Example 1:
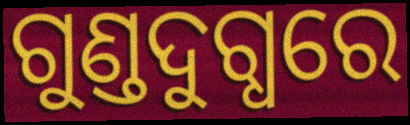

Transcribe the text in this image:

ଗୁଣ୍ଡଦୁଗ୍ଧରେ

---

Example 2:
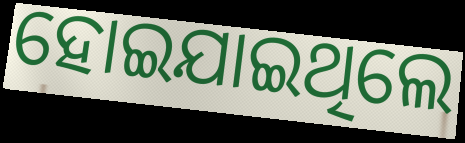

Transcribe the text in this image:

ହୋଇଯାଇଥିଲେ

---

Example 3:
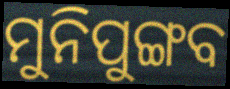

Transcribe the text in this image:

ମୁନିପୁଙ୍ଗବ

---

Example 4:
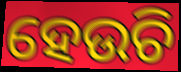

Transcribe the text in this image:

ହେଉଚି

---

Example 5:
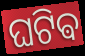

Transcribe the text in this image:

ଘଟିଵ